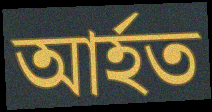
আর্হত